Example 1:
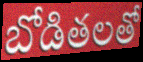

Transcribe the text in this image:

బోడితలతో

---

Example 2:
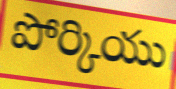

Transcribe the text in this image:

పోర్కియు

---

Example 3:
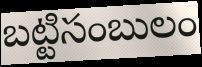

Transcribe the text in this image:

బట్టిసంబులం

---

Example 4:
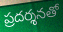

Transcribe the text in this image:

ప్రదర్శనతో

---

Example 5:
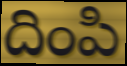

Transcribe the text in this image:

దింపి